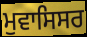
ਮੁਵਾਸਿਸਰ